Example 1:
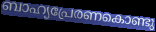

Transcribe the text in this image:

ബാഹ്യപ്രേരണകൊണ്ടു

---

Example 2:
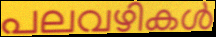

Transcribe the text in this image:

പലവഴികൾ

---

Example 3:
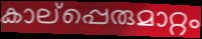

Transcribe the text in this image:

കാല്പ്പെരുമാറ്റം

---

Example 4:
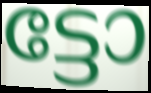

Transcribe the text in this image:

ട്ടോ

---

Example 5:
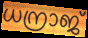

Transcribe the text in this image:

ധന്രാജ്